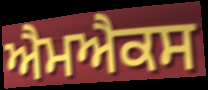
ਐਮਐਕਸ